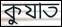
কুযাত